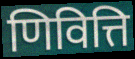
णिवित्ति